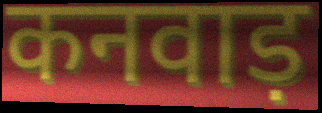
कनवाड़